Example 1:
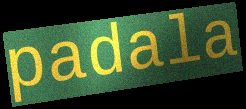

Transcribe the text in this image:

padala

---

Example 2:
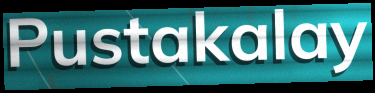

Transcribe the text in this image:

Pustakalay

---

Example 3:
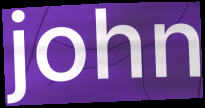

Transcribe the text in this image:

john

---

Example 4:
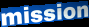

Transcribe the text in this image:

mission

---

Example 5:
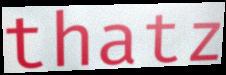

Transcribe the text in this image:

thatz